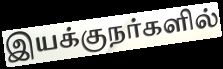
இயக்குநர்களில்